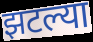
झटल्या